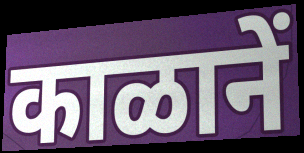
काळानें